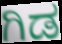
ಗಿಡ